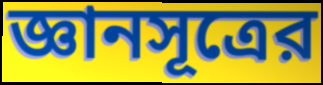
জ্ঞানসূত্রের